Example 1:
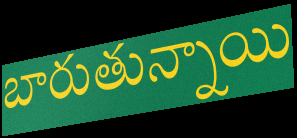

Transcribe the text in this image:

బారుతున్నాయి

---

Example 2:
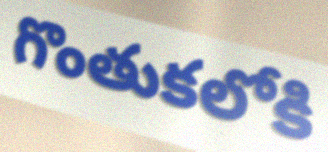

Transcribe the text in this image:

గొంతుకలోకి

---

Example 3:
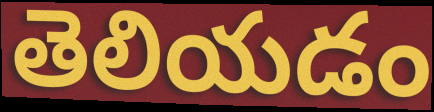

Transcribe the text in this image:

తెలియడం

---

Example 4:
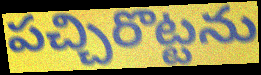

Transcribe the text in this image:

పచ్చిరొట్టను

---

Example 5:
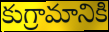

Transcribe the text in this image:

కుగ్రామానికి